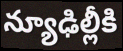
న్యూఢిల్లీకి